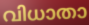
വിധാതാ